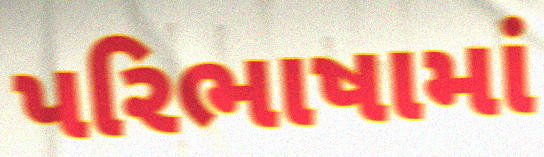
પરિભાષામાં